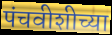
पंचवीशीच्या